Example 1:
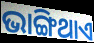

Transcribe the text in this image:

ଭାଙ୍ଗିଥାଏ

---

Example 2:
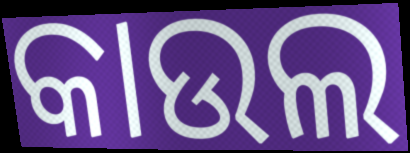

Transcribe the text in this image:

କାଉଲ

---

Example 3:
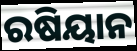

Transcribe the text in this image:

ରଷିୟାନ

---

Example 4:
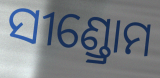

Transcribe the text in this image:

ସୀଣ୍ଡ୍ରୋମ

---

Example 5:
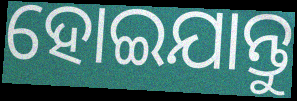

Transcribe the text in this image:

ହୋଇଯାନ୍ତୁ